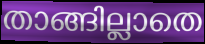
താങ്ങില്ലാതെ